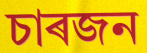
চাৰজন